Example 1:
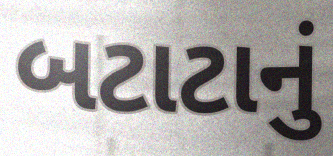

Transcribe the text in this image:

બટાટાનું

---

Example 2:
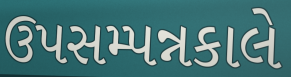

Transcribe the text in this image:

ઉપસમ્પન્નકાલે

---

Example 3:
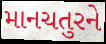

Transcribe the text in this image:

માનચતુરને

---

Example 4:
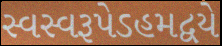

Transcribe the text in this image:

સ્વસ્વરૂપેઽહમદ્વયે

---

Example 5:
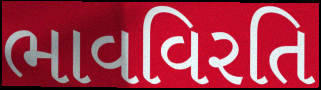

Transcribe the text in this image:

ભાવવિરતિ